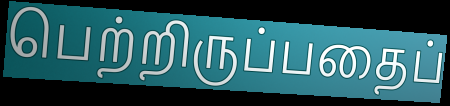
பெற்றிருப்பதைப்